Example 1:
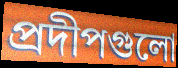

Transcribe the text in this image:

প্রদীপগুলো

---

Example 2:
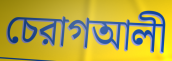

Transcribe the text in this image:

চেরাগআলী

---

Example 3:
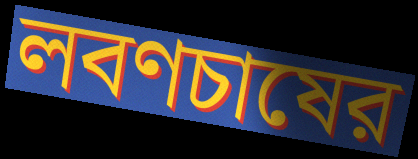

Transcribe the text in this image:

লবণচাষের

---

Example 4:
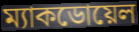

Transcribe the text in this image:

ম্যাকডোয়েল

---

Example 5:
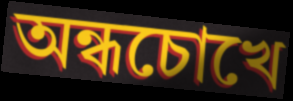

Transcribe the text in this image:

অন্ধচোখে